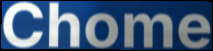
Chome